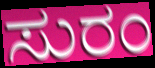
ಸುರಂ